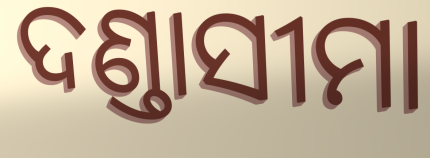
ଦଣ୍ଡାସୀମା